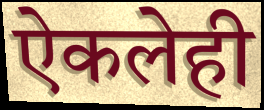
ऐकलेही